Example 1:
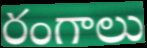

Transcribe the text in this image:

రంగాలు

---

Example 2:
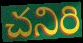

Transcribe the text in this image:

చనిరి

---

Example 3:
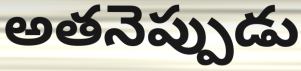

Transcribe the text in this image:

అతనెప్పుడు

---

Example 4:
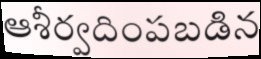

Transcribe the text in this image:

ఆశీర్వదింపబడిన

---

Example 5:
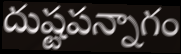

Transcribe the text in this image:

దుష్టపన్నాగం